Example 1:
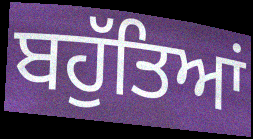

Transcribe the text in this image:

ਬਹੁੱਤਿਆਂ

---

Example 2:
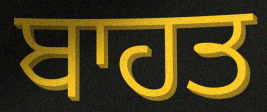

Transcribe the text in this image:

ਬਾਹਤ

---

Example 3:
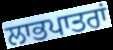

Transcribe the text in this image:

ਲਾਭਪਾਤਰਾਂ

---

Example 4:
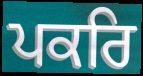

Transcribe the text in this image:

ਪਕਰਿ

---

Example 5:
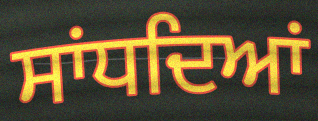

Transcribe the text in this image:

ਸਾਂਧਦਿਆਂ